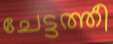
ചേട്ടത്തീ